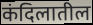
कंदिलातील